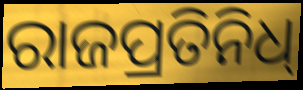
ରାଜପ୍ରତିନିଧ୍